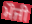
ਮੌਜੀ